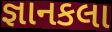
જ્ઞાનકલા